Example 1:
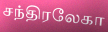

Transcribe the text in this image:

சந்திரலேகா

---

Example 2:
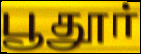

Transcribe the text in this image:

பூதூர்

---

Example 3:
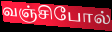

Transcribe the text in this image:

வஞ்சிபோல்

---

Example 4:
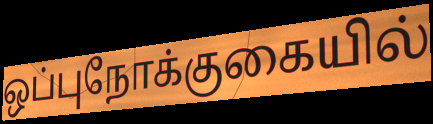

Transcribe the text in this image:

ஒப்புநோக்குகையில்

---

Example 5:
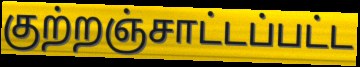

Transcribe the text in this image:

குற்றஞ்சாட்டப்பட்ட